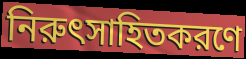
নিরুৎসাহিতকরণে